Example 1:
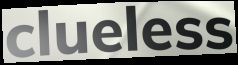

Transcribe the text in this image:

clueless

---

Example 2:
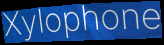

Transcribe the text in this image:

Xylophone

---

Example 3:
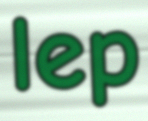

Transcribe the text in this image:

lep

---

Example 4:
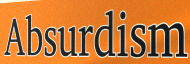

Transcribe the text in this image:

Absurdism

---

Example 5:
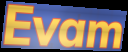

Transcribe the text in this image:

Evam